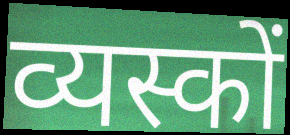
व्यस्कों